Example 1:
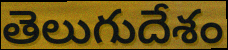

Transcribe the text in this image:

తెలుగుదేశం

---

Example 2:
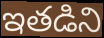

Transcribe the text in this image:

ఇతడిని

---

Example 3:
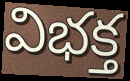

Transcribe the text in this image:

విభక్త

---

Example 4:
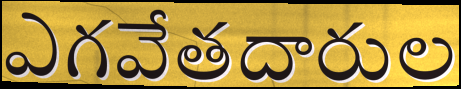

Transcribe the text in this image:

ఎగవేతదారుల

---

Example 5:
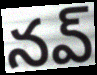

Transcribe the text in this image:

నవ్